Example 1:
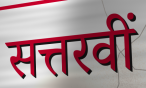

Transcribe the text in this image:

सत्तरवीं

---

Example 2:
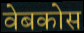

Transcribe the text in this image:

वेबकोस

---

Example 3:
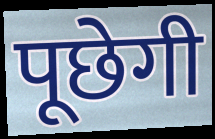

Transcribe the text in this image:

पूछेगी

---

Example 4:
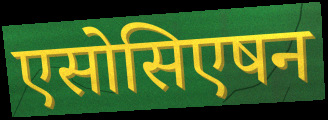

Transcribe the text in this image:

एसोसिएषन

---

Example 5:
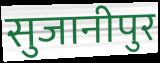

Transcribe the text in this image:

सुजानीपुर